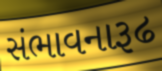
સંભાવનારૂઢ